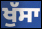
ਖੁੱਸਾ